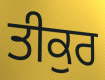
ਤੀਕੁਰ